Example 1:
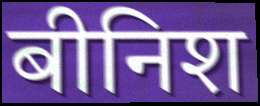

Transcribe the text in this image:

बीनिश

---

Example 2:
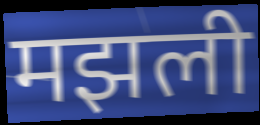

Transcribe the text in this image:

मझली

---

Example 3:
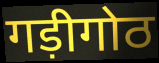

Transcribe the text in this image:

गड़ीगोठ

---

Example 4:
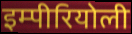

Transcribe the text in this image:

इम्पीरियोली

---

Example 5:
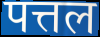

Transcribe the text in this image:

पत्तल